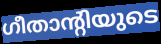
ഗീതാന്റിയുടെ